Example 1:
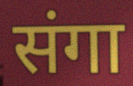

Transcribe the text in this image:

संगा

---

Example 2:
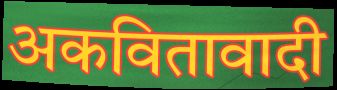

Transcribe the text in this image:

अकवितावादी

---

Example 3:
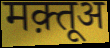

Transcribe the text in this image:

मक़्तूअ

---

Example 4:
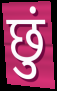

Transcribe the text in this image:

छुं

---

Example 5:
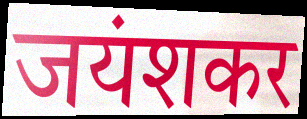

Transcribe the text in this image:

जयंशकर